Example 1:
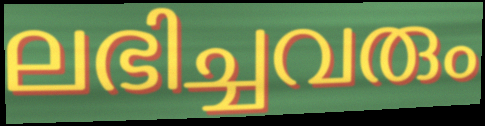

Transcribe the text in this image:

ലഭിച്ചവരും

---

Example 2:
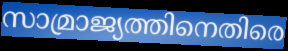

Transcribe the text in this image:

സാമ്രാജ്യത്തിനെതിരെ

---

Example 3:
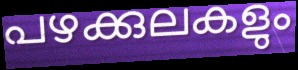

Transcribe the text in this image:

പഴക്കുലകളും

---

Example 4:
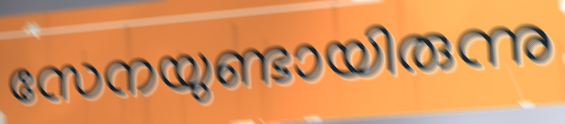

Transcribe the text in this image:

സേനയുണ്ടായിരുന്നു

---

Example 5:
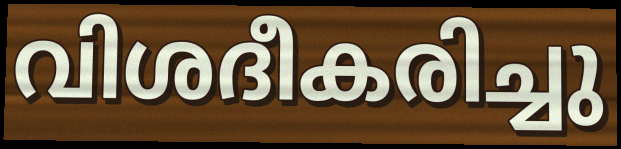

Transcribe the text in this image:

വിശദീകരിച്ചു